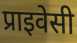
प्राइवेसी